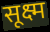
सूक्ष्म